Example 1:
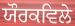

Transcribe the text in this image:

ਯੌਰਕਵਿਲੇ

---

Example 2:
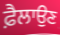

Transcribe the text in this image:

ਫ਼ੈਲਾਉਣ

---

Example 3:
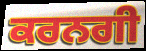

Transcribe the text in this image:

ਕਰਨਗੀ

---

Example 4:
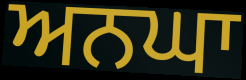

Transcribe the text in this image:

ਅਨਘਾ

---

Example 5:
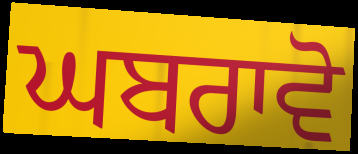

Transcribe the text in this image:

ਘਬਰਾਵੋ